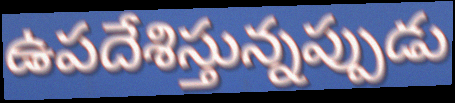
ఉపదేశిస్తున్నప్పుడు